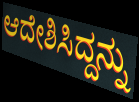
ಆದೇಶಿಸಿದ್ದನ್ನು